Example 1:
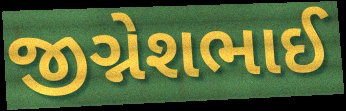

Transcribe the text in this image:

જીગ્નેશભાઈ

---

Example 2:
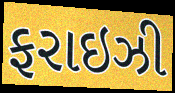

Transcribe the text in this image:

ફરાઇઝી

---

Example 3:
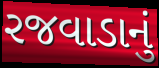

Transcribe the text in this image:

રજવાડાનું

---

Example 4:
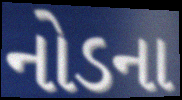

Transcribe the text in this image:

નોડના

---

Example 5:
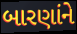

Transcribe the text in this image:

બારણાંને